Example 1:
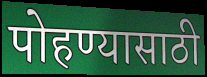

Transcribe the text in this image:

पोहण्यासाठी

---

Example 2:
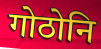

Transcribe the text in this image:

गोठोनि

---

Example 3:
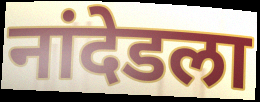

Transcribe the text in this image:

नांदेडला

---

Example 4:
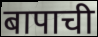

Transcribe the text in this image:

बापाची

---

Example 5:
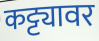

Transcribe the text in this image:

कट्ट्यावर